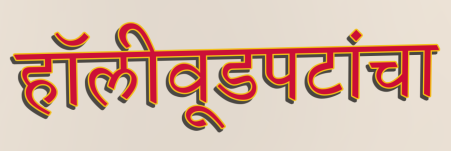
हॉलीवूडपटांचा